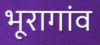
भूरागांव